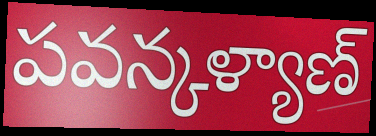
పవన్కళ్యాణ్